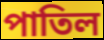
পাতিল